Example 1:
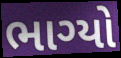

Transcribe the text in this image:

ભાગ્યો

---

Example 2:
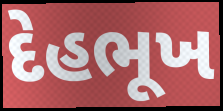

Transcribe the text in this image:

દેહભૂખ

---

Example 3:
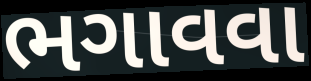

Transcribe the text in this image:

ભગાવવા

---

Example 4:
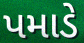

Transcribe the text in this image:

પમાડે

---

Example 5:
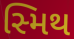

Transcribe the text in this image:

સ્મિથ